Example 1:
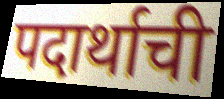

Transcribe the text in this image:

पदार्थाची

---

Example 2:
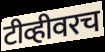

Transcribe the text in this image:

टीव्हीवरच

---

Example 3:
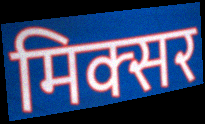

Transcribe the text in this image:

मिक्‍सर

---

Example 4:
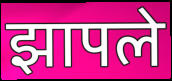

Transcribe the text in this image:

झापले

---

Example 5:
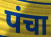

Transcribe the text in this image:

पंचा